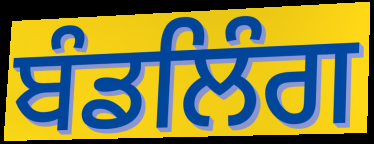
ਬੰਡਲਿੰਗ